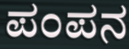
ಪಂಪನ